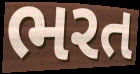
ભરત